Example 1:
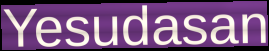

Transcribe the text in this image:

Yesudasan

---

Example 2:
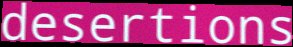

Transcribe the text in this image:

desertions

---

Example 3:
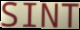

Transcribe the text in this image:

SINT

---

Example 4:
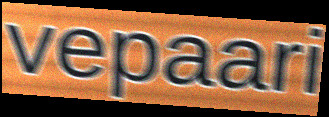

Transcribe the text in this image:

vepaari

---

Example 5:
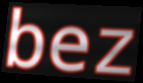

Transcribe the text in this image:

bez